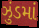
ઝુંડમાં